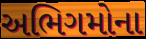
અભિગમોના